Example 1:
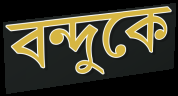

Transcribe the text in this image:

বন্দুকে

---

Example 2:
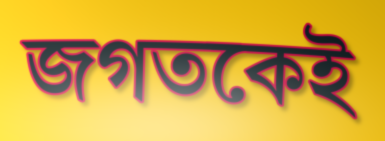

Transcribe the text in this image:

জগতকেই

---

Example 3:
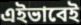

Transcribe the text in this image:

এইভাবেই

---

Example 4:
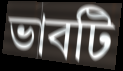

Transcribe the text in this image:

ভাবটি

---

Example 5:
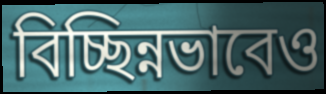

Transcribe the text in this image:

বিচ্ছিন্নভাবেও